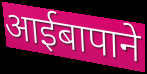
आईबापाने